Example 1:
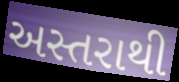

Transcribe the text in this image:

અસ્તરાથી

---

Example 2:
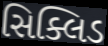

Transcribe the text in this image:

સિક્લિડ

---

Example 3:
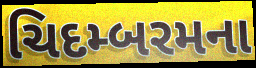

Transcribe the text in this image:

ચિદમ્બરમના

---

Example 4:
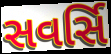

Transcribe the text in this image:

સવર્સિ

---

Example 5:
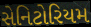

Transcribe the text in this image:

સેનિટોરિયમ